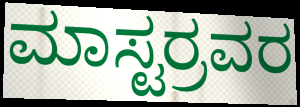
ಮಾಸ್ಟರ್ರವರ